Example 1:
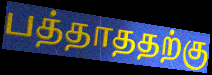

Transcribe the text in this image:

பத்தாததற்கு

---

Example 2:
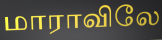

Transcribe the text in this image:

மாராவிலே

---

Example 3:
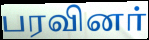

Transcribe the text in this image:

பரவினர்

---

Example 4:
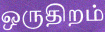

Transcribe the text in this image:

ஒருதிறம்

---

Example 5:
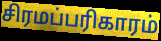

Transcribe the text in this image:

சிரமப்பரிகாரம்